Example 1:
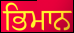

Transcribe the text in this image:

ਭਿਮਾਨ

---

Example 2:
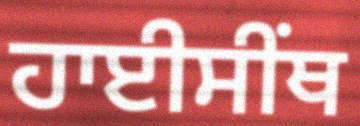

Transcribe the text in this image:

ਹਾਈਸੀੰਥ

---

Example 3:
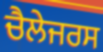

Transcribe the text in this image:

ਚੈਲੇਜਰਸ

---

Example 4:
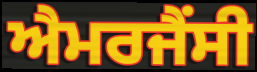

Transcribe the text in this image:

ਐਮਰਜੈਂਸੀ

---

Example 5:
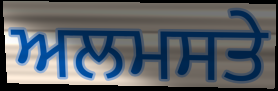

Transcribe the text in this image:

ਅਲਮਸਤੇ